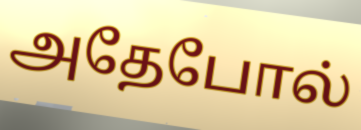
அதேபோல்